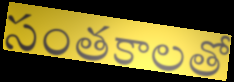
సంతకాలతో